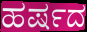
ಹರ್ಷದ